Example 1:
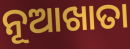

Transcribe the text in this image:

ନୂଆଖାତା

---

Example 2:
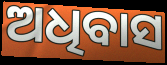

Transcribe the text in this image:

ଅଧିବାସ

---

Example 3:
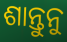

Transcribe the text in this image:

ଶାନ୍ତୁନୁ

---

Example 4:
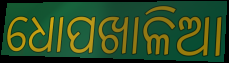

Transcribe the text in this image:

ଧୋପଖାଳିଆ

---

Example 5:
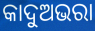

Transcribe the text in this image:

କାଦୁଅଭରା